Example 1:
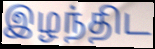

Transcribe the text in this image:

இழந்திட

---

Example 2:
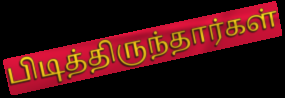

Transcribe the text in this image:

பிடித்திருந்தார்கள்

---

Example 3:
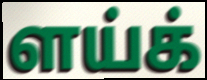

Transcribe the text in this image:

ளய்க்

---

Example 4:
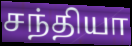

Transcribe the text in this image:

சந்தியா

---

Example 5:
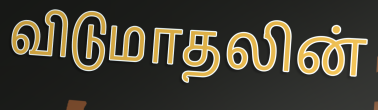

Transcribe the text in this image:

விடுமாதலின்